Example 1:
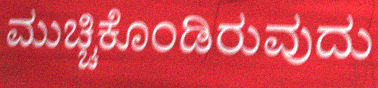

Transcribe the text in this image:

ಮುಚ್ಚಿಕೊಂಡಿರುವುದು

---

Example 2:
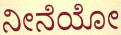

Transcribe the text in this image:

ನೀನೆಯೋ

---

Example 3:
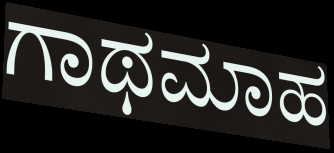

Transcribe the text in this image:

ಗಾಥಮಾಹ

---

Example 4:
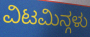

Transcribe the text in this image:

ವಿಟಮಿನ್ಗಳು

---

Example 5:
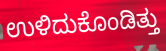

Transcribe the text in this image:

ಉಳಿದುಕೊಂಡಿತ್ತು